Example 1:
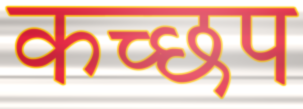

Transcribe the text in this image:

कच्छप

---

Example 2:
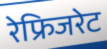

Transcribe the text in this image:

रेफ्रिजरेट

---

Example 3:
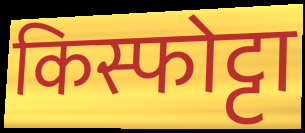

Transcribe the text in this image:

किस्फोट्टा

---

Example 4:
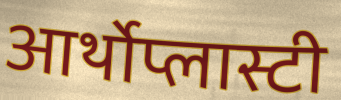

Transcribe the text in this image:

आर्थोप्लास्टी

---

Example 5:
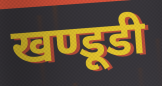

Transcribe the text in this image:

खण्डूडी